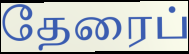
தேரைப்